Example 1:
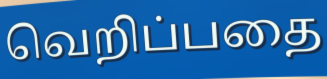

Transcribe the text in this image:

வெறிப்பதை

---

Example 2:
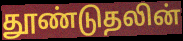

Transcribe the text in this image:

தூண்டுதலின்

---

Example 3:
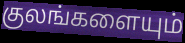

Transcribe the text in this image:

குலங்களையும்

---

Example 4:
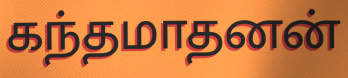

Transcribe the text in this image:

கந்தமாதனன்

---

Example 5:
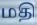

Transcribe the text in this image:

மதி